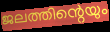
ജലത്തിന്റെയും